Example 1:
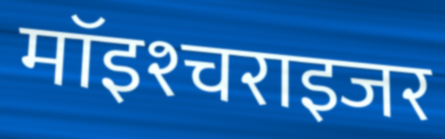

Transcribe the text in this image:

मॉइश्चराइजर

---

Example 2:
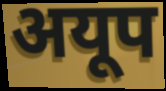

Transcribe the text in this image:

अयूप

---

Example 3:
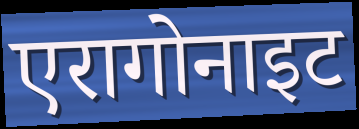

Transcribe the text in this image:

एरागोनाइट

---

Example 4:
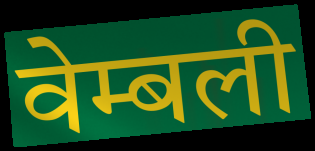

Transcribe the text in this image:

वेम्बली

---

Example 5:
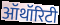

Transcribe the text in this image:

ऑथॉरिटी